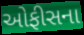
ઓફીસના